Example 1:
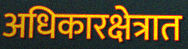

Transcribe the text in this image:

अधिकारक्षेत्रात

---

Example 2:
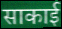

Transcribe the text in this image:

साकाई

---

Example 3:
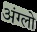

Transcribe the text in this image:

अंग्लो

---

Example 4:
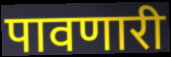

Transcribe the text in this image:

पावणारी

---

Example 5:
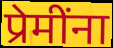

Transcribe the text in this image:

प्रेमींना